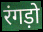
रंगड़ो